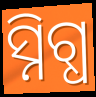
ସ୍ନିଗ୍ଧ